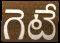
గెటే